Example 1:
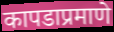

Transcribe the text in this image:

कापडाप्रमाणे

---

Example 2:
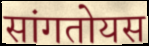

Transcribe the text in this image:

सांगतोयस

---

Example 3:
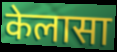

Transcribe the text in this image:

केलासा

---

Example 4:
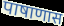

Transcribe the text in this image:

पाषाणास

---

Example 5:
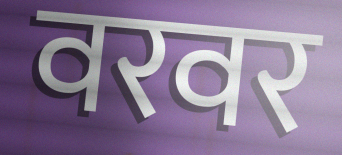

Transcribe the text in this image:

वरवर